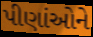
પીણાંઓને